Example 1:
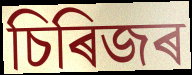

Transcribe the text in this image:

চিৰিজৰ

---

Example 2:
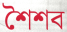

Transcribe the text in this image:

শৈশব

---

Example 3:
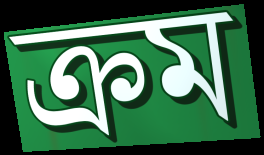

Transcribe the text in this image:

ক্ৰম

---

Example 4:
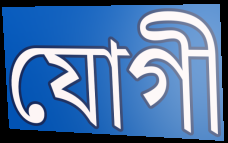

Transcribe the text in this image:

যোগী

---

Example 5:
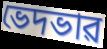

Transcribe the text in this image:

ভেদভাৱ